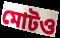
মোটও